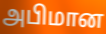
அபிமான